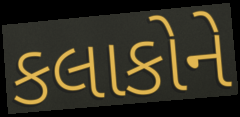
કલાકોને